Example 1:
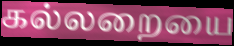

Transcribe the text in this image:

கல்லறையை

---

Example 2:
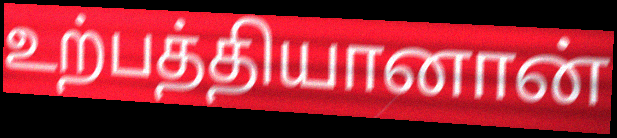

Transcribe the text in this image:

உற்பத்தியானான்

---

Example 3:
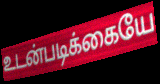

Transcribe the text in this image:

உடன்படிக்கையே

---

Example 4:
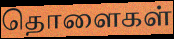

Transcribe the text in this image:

தொளைகள்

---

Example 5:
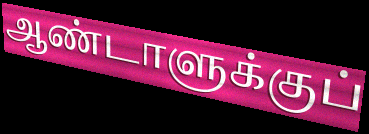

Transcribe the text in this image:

ஆண்டாளுக்குப்